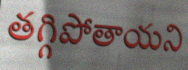
తగ్గిపోతాయని